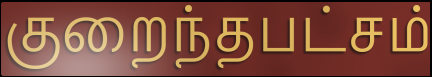
குறைந்தபட்சம்